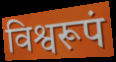
विश्वरूपं